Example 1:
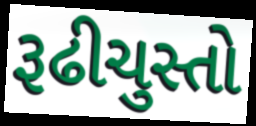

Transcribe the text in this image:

રૂઢીચુસ્તો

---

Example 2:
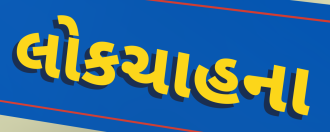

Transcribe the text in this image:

લોકચાહના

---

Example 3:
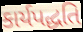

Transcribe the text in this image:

કાર્યપદ્ધતિ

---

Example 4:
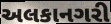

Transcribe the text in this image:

અલકાનગરી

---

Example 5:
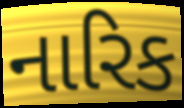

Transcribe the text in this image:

નારિક